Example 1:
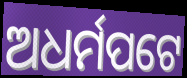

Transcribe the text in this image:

ଅଧର୍ମପଟେ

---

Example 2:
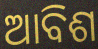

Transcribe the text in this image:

ଆବିଶ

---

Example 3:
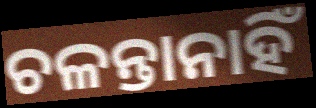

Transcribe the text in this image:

ଚଳନ୍ତାନାହିଁ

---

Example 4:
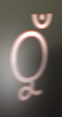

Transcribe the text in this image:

ଠୁଁ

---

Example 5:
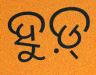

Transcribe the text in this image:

ହୁଡ଼୍